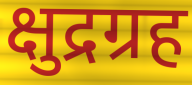
क्षुद्रग्रह